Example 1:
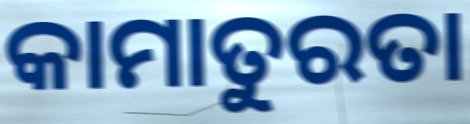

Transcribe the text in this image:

କାମାତୁରତା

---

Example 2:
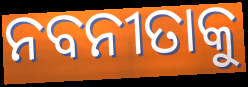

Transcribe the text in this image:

ନବନୀତାକୁ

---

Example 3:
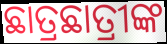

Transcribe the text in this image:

ଛାତ୍ରଛାତ୍ରୀଙ୍କ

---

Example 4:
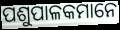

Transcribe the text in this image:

ପଶୁପାଳକମାନେ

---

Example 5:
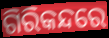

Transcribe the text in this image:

ଗିରିକନ୍ଦରେ